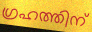
ഗ്രഹത്തിന്